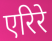
एरिरे